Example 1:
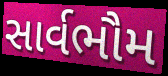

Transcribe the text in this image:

સાર્વભૌમ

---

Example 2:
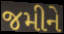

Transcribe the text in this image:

જમીને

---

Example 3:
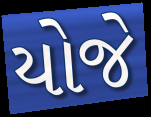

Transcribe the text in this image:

યોજે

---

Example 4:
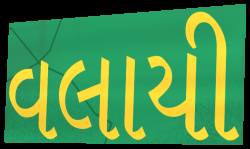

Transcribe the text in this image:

વલાયી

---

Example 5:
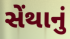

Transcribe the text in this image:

સેંથાનું